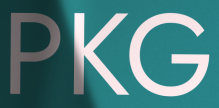
PKG